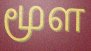
மூள